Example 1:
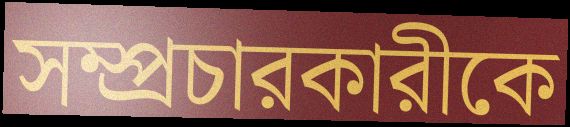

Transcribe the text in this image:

সম্প্রচারকারীকে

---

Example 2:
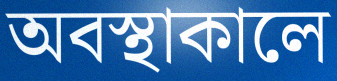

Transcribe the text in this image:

অবস্থাকালে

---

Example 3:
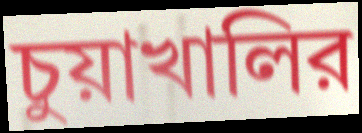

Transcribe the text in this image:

চুয়াখালির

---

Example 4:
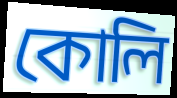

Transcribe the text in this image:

কোলি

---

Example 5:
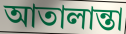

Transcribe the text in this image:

আতালান্তা